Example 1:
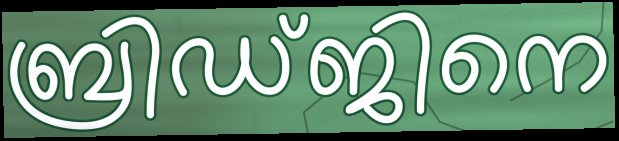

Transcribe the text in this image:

ബ്രിഡ്ജിനെ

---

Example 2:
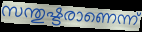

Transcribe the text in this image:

സന്തുഷ്ടരാണെന്ന്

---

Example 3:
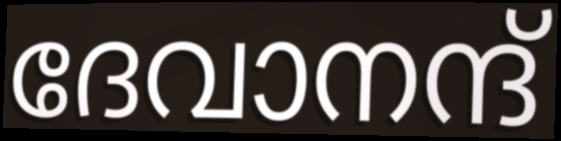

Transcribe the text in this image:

ദേവാനന്ദ്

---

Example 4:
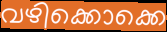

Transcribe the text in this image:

വഴിക്കൊക്കെ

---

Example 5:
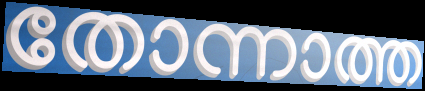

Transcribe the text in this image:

തോന്നാത്ത